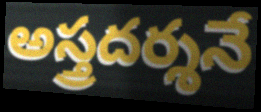
అస్త్రదర్శనే